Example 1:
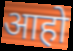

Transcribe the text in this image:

आहो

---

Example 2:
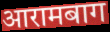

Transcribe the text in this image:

आरामबाग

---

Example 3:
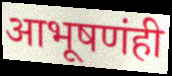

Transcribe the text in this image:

आभूषणंही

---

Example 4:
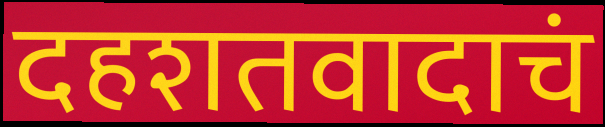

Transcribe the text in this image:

दहशतवादाचं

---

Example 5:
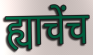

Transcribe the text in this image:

ह्याचेंच